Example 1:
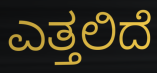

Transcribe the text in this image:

ಎತ್ತಲಿದೆ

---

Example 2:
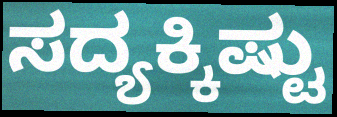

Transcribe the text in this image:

ಸದ್ಯಕ್ಕಿಷ್ಟು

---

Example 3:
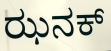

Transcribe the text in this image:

ಝನಕ್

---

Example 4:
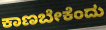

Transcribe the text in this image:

ಕಾಣಬೇಕೆಂದು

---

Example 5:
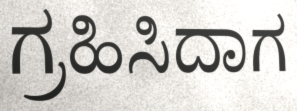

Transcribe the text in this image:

ಗ್ರಹಿಸಿದಾಗ